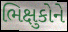
ભિક્ષુકોને